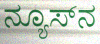
ನ್ಯೂಸ್‌ನ